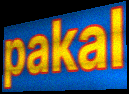
pakal